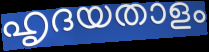
ഹൃദയതാളം